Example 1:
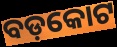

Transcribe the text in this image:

ବଡ଼କୋଟ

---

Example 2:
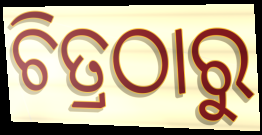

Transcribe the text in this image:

ଚିତ୍ରଠାରୁ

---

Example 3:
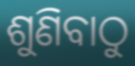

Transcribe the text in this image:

ଶୁଣିବାଠୁ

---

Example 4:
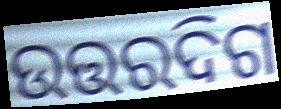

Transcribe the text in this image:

ଉତ୍ତରଦିଗ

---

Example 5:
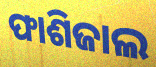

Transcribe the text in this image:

ଫାଶିଜାଲ